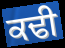
ਕਢੀ